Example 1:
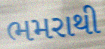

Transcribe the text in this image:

ભમરાથી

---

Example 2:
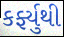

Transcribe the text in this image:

કર્ફ્યુથી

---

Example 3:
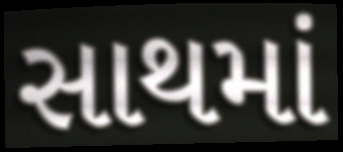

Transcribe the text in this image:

સાથમાં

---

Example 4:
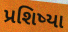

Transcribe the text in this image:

પ્રશિષ્યા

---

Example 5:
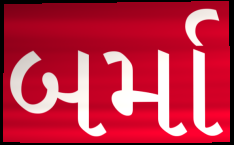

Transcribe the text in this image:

બર્મા